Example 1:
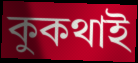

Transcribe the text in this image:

কুকথাই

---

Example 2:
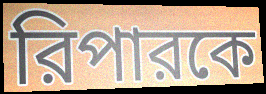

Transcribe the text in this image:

রিপারকে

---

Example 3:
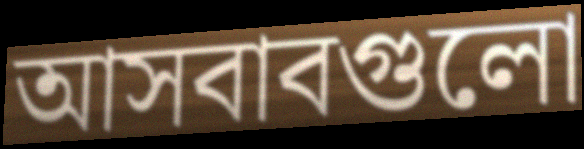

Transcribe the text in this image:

আসবাবগুলো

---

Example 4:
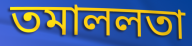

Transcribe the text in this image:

তমাললতা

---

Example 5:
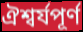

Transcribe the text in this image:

ঐশ্বর্যপূর্ণ